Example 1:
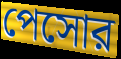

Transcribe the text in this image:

পেসোর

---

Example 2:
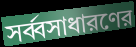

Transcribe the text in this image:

সর্ব্বসাধারণের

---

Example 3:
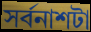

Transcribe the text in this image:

সর্বনাশটা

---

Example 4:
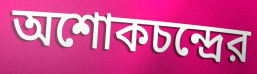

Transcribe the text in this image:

অশোকচন্দ্রের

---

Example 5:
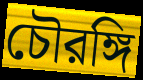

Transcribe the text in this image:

চৌরঙ্গি